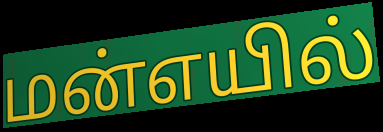
மன்எயில்